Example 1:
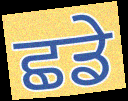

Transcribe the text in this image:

ਛਡੇ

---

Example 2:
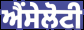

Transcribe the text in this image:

ਐਂਸੇਲੋਟੀ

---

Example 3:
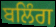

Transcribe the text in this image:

ਬਲਿੰਗ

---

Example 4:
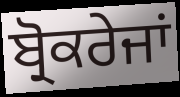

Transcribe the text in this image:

ਬ੍ਰੋਕਰੇਜਾਂ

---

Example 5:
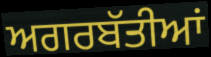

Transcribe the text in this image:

ਅਗਰਬੱਤੀਆਂ